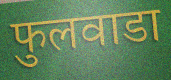
फुलवाडा